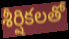
శీర్షికలతో